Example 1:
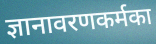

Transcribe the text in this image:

ज्ञानावरणकर्मका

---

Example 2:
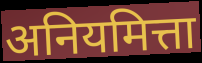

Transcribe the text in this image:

अनियमित्ता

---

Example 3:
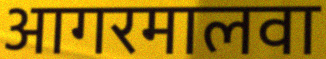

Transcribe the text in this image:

आगरमालवा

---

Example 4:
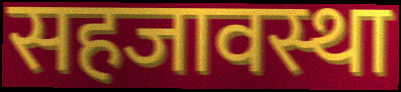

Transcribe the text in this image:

सहजावस्था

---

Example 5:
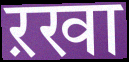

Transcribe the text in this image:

ऱखा